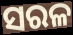
ସରଳ